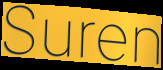
Suren